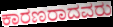
ಕಾರಣರಾದವರು